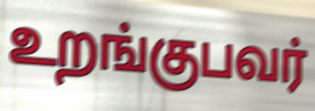
உறங்குபவர்